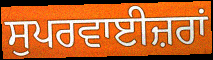
ਸੁਪਰਵਾਈਜ਼ਰਾਂ